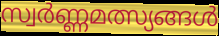
സ്വർണ്ണമത്സ്യങ്ങൾ